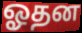
ஓதன